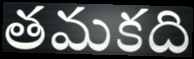
తమకది